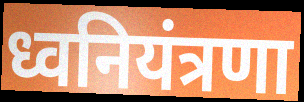
ध्वनियंत्रणा